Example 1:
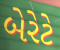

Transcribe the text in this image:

બેરેટે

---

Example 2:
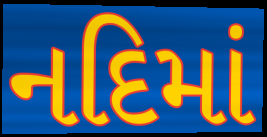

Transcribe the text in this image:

નદિમાં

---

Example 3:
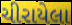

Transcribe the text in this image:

ચીરાયેલા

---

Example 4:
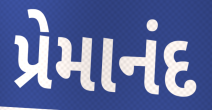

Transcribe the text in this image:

પ્રેમાનંદ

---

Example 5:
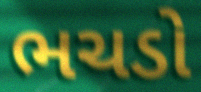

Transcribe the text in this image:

ભચડો